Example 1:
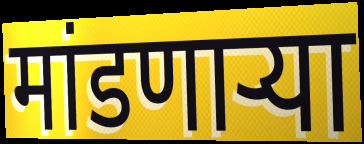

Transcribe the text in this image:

मांडणार्‍या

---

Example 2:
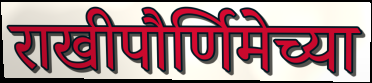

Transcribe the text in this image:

राखीपौर्णिमेच्या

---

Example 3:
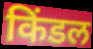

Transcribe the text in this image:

किंडल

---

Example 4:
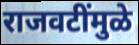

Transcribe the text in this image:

राजवटींमुळे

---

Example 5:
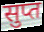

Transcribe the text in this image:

सुप्त